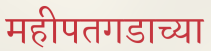
महीपतगडाच्या